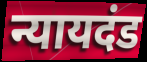
न्यायदंड